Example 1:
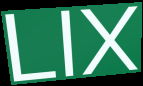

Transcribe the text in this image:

LIX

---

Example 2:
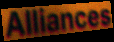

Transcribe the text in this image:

Alliances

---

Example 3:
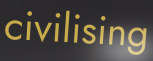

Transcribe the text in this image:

civilising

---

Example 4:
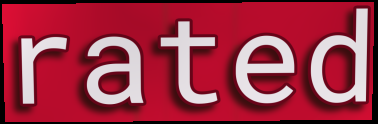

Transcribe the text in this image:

rated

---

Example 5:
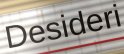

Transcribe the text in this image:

Desideri